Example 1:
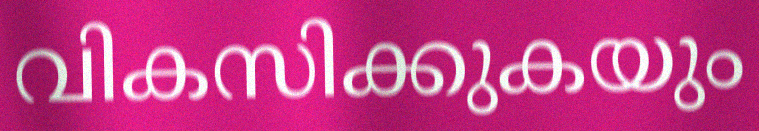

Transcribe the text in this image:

വികസിക്കുകയും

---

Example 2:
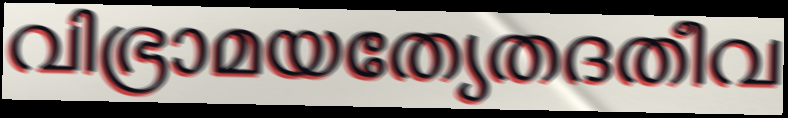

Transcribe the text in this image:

വിഭ്രാമയത്യേതദതീവ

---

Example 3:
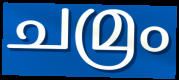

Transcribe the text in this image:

ചമ്രം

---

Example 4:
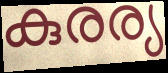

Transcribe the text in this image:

കുരര്യ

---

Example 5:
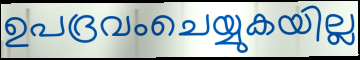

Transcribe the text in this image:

ഉപദ്രവംചെയ്യുകയില്ല